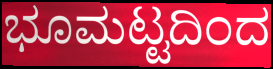
ಭೂಮಟ್ಟದಿಂದ